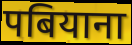
पबियाना